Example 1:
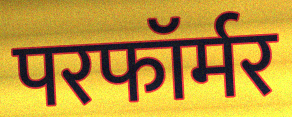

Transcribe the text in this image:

परफॉर्मर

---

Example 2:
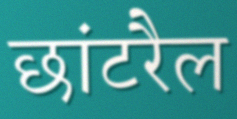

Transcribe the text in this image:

छांटरैल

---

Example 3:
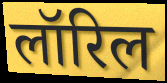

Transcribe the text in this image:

लॉरिल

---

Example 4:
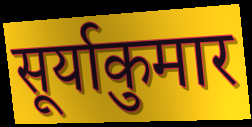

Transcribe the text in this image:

सूर्याकुमार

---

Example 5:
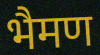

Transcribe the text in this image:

भैमण